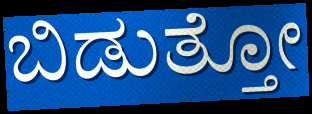
ಬಿಡುತ್ತೋ